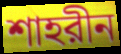
শাহরীন